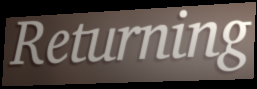
Returning